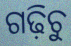
ଗଢ଼ିଚୁ